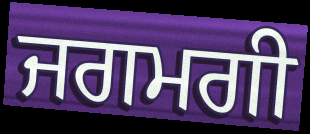
ਜਗਮਗੀ